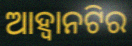
ଆହ୍ଵାନଟିର